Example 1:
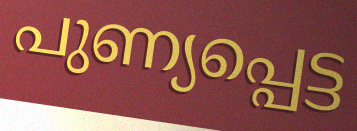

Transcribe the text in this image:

പുണ്യപ്പെട്ട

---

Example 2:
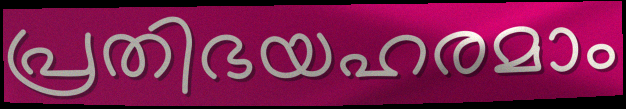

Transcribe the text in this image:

പ്രതിഭയഹരമാം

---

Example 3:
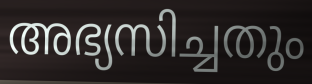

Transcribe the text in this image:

അഭ്യസിച്ചതും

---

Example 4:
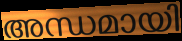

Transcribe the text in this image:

അന്ധമായി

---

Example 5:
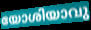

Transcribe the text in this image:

യോശിയാവു